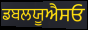
ਡਬਲਯੂਐਸਓ